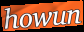
howun